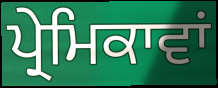
ਪ੍ਰੇਮਿਕਾਵਾਂ